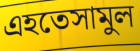
এহতেসামুল